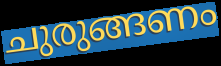
ചുരുങ്ങണം